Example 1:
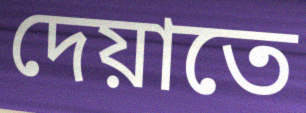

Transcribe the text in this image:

দেয়াতে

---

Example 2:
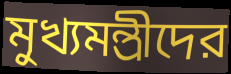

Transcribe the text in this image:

মুখ্যমন্ত্রীদের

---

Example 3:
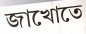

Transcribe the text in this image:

জাখোতে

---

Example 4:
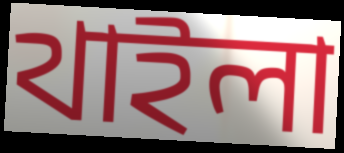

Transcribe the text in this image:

থাইলা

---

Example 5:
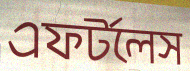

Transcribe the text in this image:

এফর্টলেস